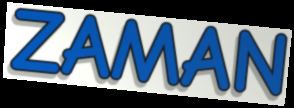
ZAMAN